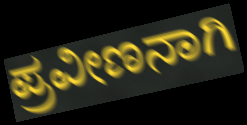
ಪ್ರವೀಣನಾಗಿ